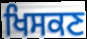
ਖਿਸਕਣ